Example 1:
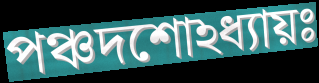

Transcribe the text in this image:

পঞ্চদশোঽধ্যায়ঃ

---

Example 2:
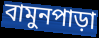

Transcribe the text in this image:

বামুনপাড়া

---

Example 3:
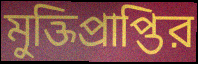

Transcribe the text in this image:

মুক্তিপ্রাপ্তির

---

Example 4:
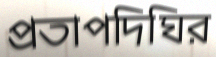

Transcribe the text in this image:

প্রতাপদিঘির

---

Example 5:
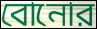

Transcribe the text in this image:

বোনোর